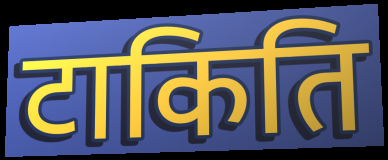
टाकिति